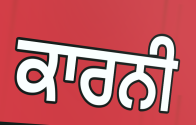
ਕਾਰਨੀ